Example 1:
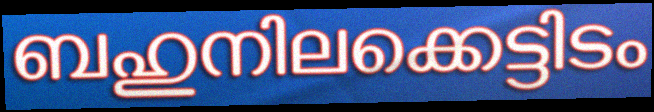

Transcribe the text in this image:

ബഹുനിലക്കെട്ടിടം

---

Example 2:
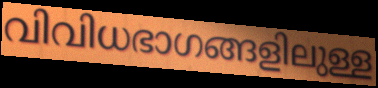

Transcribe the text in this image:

വിവിധഭാഗങ്ങളിലുള്ള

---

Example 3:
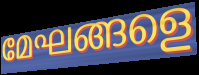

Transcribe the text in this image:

മേഘങ്ങളെ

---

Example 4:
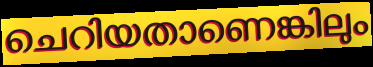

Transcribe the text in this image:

ചെറിയതാണെങ്കിലും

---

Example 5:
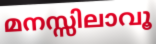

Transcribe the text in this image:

മനസ്സിലാവൂ